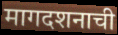
मागदशनाची